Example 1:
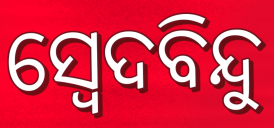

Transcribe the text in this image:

ସ୍ଵେଦବିନ୍ଦୁ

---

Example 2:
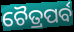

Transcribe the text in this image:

ଚୈତ୍ରପର୍ବ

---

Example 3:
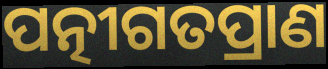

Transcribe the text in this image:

ପତ୍ନୀଗତପ୍ରାଣ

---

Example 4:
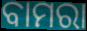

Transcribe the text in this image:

ବାମରା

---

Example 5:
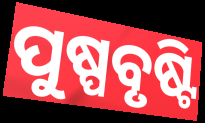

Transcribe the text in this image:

ପୁଷ୍ପବୃଷ୍ଟି